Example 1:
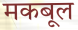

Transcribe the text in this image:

मकबूल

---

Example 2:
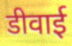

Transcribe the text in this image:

डीवाई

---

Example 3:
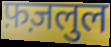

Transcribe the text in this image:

फ़ज़लुल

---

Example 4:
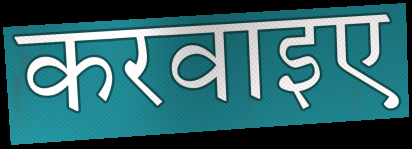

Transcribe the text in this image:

करवाइए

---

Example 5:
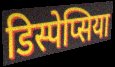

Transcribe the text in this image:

डिस्पेप्सिया